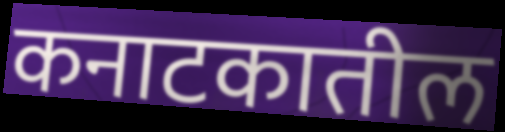
कनाटकातील